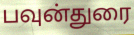
பவுன்துரை